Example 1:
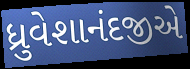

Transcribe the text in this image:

ધ્રુવેશાનંદજીએ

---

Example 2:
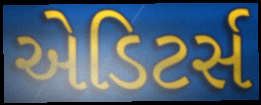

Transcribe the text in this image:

એડિટર્સ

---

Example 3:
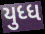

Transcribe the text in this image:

યુધ્ધ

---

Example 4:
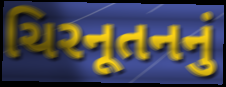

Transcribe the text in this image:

ચિરનૂતનનું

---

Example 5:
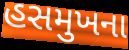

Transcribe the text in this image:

હસમુખના